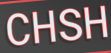
CHSH